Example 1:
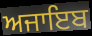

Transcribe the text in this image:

ਅਜਾਇਬ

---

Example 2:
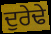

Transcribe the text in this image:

ਦੁਰੇਢੇ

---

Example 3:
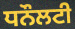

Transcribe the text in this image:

ਧਨੌਲਟੀ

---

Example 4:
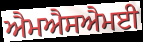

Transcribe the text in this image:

ਐਮਐਸਐਮਈ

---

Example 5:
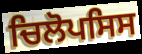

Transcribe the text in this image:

ਚਿਲੋਪਸਿਸ